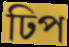
ঢিপ